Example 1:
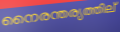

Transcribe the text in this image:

നൈരന്തര്യത്തില്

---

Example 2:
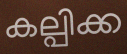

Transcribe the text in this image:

കല്പിക്ക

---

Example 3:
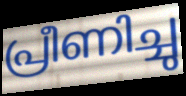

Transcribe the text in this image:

പ്രീണിച്ചു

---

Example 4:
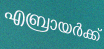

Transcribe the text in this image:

എബ്രായർക്ക്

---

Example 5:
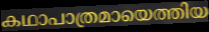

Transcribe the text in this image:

കഥാപാത്രമായെത്തിയ